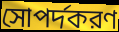
সোপর্দকরণ